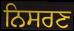
ਨਿਸਰਣ